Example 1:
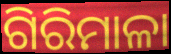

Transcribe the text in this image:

ଗିରିମାଳା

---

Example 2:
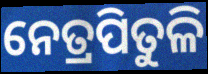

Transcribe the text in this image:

ନେତ୍ରପିତୁଳି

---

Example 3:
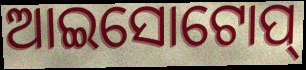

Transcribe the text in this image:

ଆଇସୋଟୋପ୍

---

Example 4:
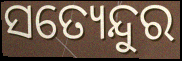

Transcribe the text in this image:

ସତ୍ୟେନ୍ଦୁର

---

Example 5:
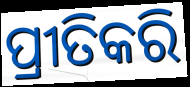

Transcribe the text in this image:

ପ୍ରୀତିକରି